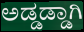
ಅಡ್ಡಡ್ಡಾಗಿ